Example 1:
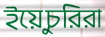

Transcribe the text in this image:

ইয়েচুরিরা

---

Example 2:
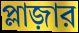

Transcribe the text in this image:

প্লাজ়ার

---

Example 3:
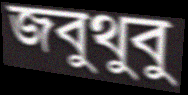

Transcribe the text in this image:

জবুথুবু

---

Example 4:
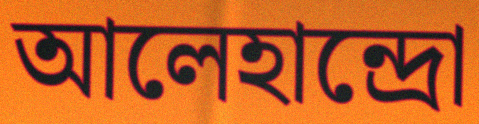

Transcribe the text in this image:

আলেহান্দ্রো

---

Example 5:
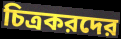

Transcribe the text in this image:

চিত্রকরদের